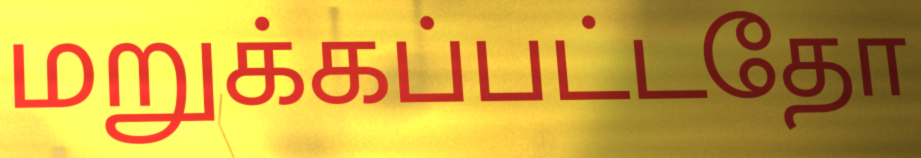
மறுக்கப்பட்டதோ